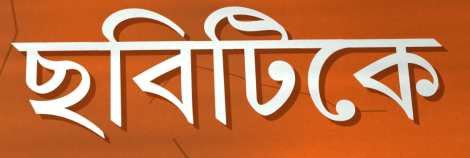
ছবিটিকে